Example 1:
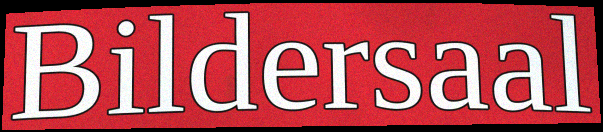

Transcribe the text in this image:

Bildersaal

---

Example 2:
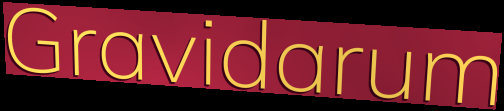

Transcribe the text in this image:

Gravidarum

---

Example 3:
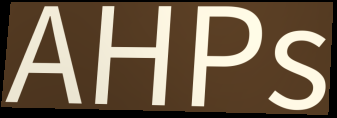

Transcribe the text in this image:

AHPs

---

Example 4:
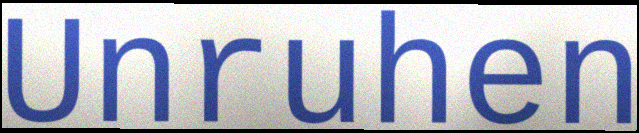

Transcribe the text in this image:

Unruhen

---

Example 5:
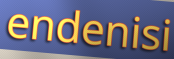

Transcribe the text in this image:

endenisi